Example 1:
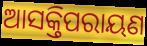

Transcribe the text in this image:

ଆସକ୍ତିପରାୟଣ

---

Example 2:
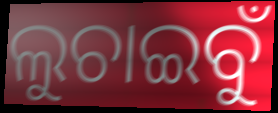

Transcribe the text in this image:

ଲୁଚାଇବୁଁ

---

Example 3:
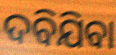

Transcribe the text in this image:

ଦବିଯିବା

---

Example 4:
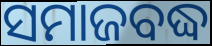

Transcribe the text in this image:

ସମାଜବଦ୍ଧ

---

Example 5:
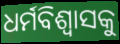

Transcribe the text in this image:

ଧର୍ମବିଶ୍ୱାସକୁ